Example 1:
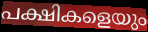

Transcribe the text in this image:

പക്ഷികളെയും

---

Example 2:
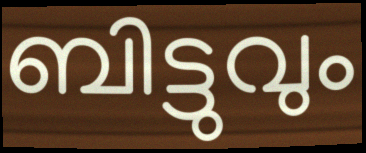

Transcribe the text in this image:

ബിട്ടുവും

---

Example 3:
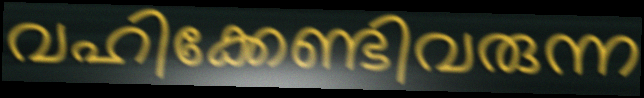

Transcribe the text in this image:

വഹിക്കേണ്ടിവരുന്ന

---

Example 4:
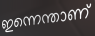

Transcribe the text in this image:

ഇന്നെന്താണ്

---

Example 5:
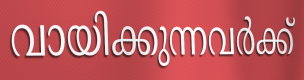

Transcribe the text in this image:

വായിക്കുന്നവർക്ക്